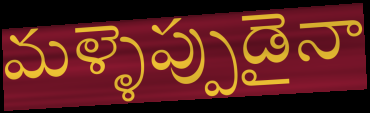
మళ్ళెప్పుడైనా